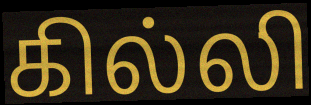
கில்லி